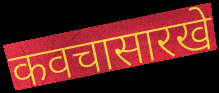
कवचासारखे